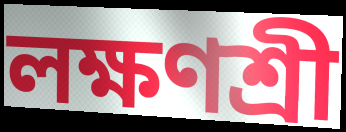
লক্ষণশ্রী